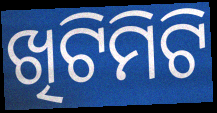
ଖିଟିମିଟି